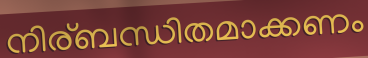
നിര്ബന്ധിതമാക്കണം